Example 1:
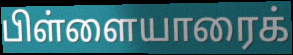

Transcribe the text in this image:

பிள்ளையாரைக்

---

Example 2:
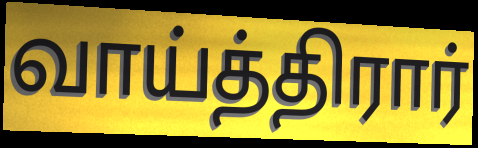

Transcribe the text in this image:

வாய்த்திரார்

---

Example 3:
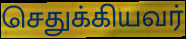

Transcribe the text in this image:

செதுக்கியவர்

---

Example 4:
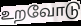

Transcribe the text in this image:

உறவோடு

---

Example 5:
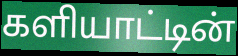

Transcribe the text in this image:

களியாட்டின்